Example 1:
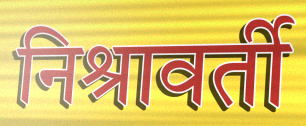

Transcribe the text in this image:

निश्रावर्ती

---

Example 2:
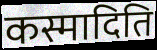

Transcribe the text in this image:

कस्मादिति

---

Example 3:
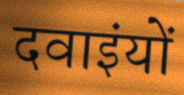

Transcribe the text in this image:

दवाइंयों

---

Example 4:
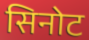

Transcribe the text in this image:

सिनोट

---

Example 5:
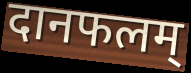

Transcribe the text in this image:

दानफलम्